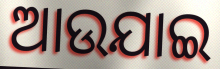
ଆଉଯାଇ